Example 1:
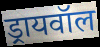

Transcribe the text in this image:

ड्रायवॉल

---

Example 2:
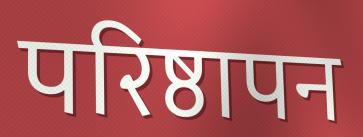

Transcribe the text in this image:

परिष्ठापन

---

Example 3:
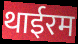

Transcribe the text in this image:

थाईरम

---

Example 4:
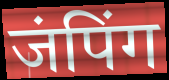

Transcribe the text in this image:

जंपिंग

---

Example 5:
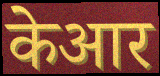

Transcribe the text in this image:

केआर